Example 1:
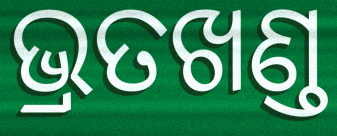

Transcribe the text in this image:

ଭ୍ରତଖଣ୍ଡ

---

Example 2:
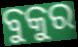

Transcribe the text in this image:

ବୁକୁର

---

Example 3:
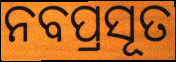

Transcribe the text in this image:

ନବପ୍ରସୂତ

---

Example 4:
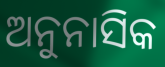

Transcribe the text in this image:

ଅନୁନାସିକ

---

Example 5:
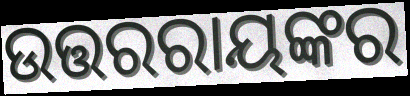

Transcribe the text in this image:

ଉତ୍ତରରାୟଙ୍କର